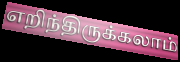
எறிந்திருக்கலாம்